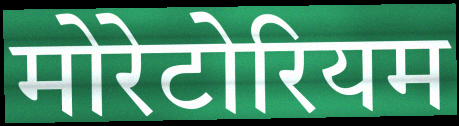
मोरेटोरियम